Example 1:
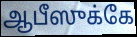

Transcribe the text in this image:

ஆபீஸுக்கே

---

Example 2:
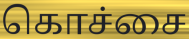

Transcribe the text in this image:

கொச்சை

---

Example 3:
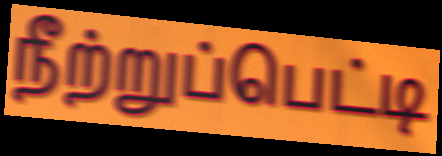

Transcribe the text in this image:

நீற்றுப்பெட்டி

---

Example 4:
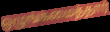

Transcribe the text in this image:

ஒழுங்கமைத்தார்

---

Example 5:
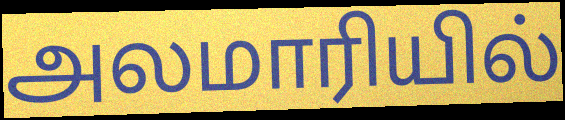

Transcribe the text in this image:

அலமாரியில்